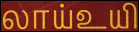
லாய்உயி